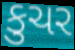
કુચર